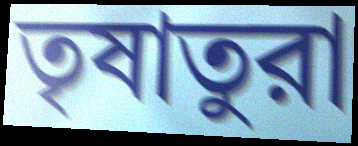
তৃষাতুরা